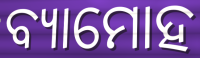
ବ୍ୟାମୋହ